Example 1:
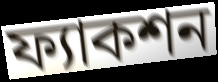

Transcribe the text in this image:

ফ্যাকশন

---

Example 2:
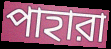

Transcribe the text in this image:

পাহারা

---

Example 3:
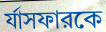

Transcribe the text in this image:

র্যাসফারকে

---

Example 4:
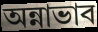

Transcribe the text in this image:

অন্নাভাব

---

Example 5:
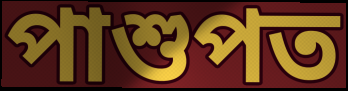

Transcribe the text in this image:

পাশুপত